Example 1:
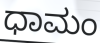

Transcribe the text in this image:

ಧಾಮಂ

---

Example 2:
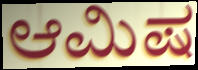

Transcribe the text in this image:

ಆಮಿಷ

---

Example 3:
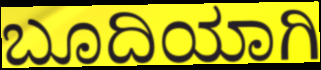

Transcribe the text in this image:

ಬೂದಿಯಾಗಿ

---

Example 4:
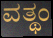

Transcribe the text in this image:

ವತ್ಥಂ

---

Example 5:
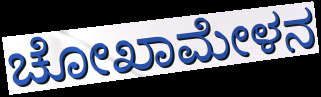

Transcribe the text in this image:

ಚೋಖಾಮೇಳನ